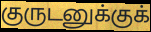
குருடனுக்குக்